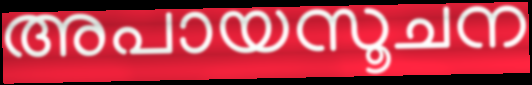
അപായസൂചന